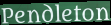
Pendleton